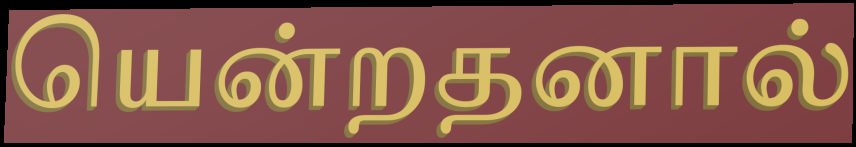
யென்றதனால்